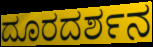
ದೂರದರ್ಶನ